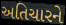
અતિચારને